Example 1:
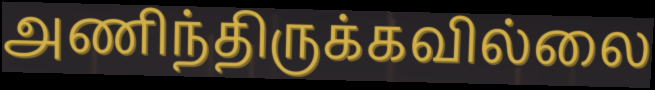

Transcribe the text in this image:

அணிந்திருக்கவில்லை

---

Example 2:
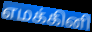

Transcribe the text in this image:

எமக்கினி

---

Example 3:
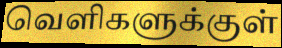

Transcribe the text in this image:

வெளிகளுக்குள்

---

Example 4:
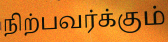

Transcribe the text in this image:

நிற்பவர்க்கும்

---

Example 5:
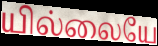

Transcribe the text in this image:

யில்லையே